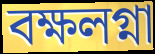
বক্ষলগ্না